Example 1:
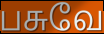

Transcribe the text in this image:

பசுவே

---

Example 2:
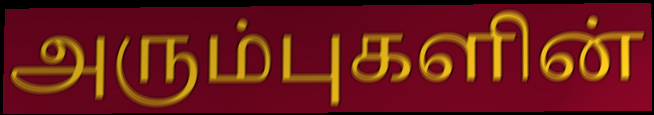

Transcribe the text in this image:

அரும்புகளின்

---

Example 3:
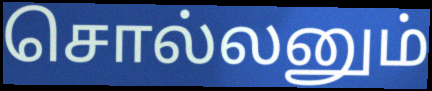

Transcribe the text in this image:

சொல்லனும்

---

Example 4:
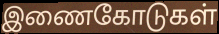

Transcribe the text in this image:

இணைகோடுகள்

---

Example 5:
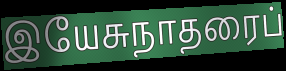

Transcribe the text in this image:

இயேசுநாதரைப்